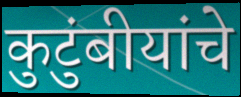
कुटुंबीयांचे